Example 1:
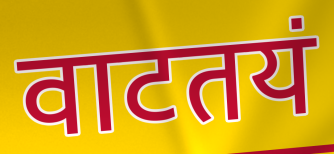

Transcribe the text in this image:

वाटतयं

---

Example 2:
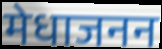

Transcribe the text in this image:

मेधाजनन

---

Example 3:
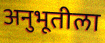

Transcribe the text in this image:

अनुभूतीला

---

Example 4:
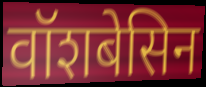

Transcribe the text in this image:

वॉशबेसिन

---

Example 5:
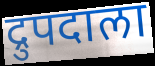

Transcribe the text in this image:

द्रुपदाला